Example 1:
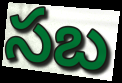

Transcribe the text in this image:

సబ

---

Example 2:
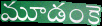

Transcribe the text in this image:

మూడంకె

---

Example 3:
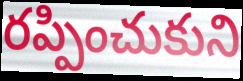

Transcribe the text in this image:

రప్పించుకుని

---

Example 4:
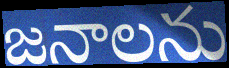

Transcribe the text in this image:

జనాలను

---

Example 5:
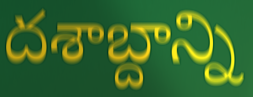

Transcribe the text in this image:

దశాబ్దాన్ని